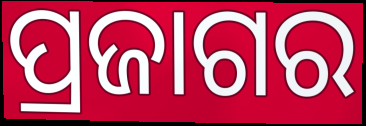
ପ୍ରଜାଗର